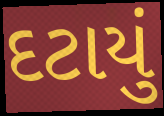
દટાયું